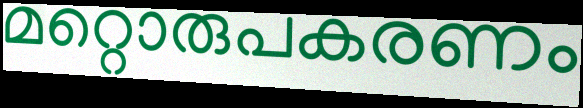
മറ്റൊരുപകരണം